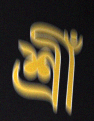
শ্ৰীঁ